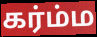
கர்ம்ம